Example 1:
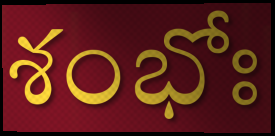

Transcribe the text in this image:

శంభోః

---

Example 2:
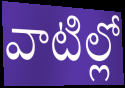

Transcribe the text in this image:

వాటిల్లో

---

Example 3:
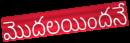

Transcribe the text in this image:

మొదలయిందనే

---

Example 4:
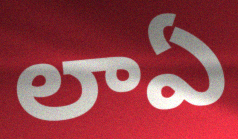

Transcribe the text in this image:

లాఏ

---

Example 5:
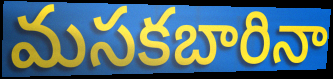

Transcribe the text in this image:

మసకబారినా